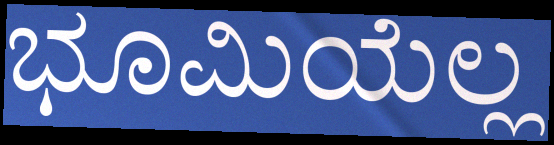
ಭೂಮಿಯೆಲ್ಲ